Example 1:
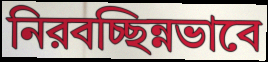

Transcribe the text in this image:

নিরবচ্ছিন্নভাবে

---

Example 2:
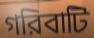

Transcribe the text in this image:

গরিবাটি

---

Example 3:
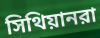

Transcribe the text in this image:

সিথিয়ানরা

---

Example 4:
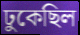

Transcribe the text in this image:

ঢুকেছিল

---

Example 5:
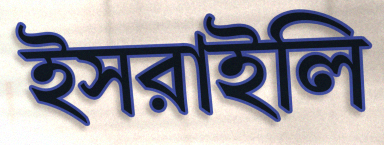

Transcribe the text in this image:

ইসরাইলি